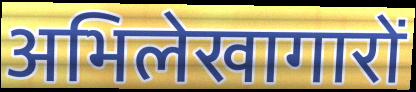
अभिलेखागारों